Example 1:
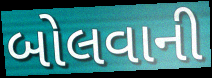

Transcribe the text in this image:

બોલવાની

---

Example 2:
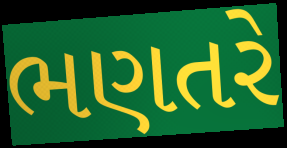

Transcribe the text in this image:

ભણતરે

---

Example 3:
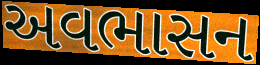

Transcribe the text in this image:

અવભાસન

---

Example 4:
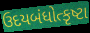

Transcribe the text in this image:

ઉદયબંધોત્કૃષ્ટા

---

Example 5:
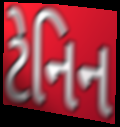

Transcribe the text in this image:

ટેનિન